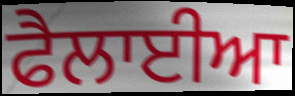
ਫੈਲਾਈਆ